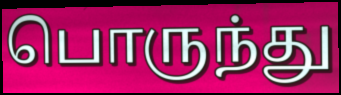
பொருந்து